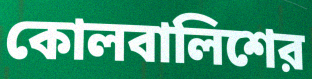
কোলবালিশের